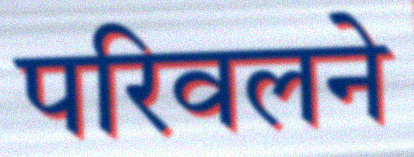
परिवलने